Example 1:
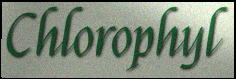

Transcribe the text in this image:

Chlorophyl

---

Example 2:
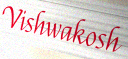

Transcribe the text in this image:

Vishwakosh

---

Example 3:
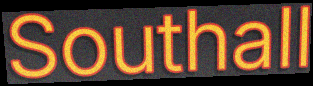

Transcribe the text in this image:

Southall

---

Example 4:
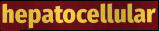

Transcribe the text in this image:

hepatocellular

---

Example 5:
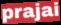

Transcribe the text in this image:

prajai